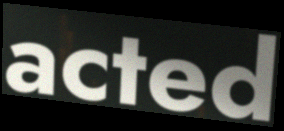
acted